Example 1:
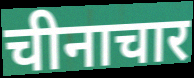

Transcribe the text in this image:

चीनाचार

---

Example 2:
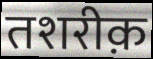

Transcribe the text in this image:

तशरीक़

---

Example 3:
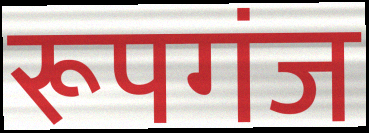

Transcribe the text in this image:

रूपगंज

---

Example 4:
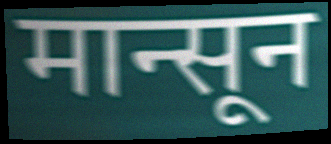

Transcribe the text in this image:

मान्सून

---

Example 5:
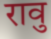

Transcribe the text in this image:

रावु